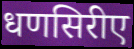
धणसिरीए